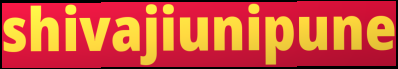
shivajiunipune